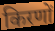
किरणों